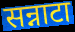
सन्नाटा